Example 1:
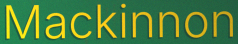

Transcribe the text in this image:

Mackinnon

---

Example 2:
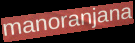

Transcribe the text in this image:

manoranjana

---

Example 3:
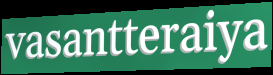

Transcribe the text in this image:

vasantteraiya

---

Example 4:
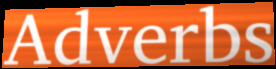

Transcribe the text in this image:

Adverbs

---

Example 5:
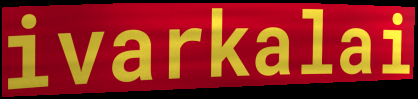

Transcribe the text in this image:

ivarkalai